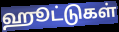
ஹூட்டுகள்